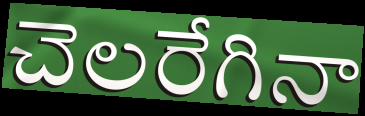
చెలరేగినా